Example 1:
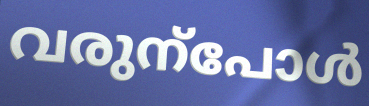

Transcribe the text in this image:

വരുന്പോൾ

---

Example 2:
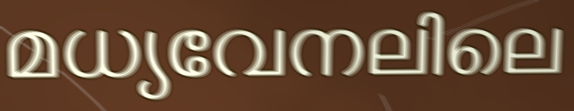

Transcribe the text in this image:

മധ്യവേനലിലെ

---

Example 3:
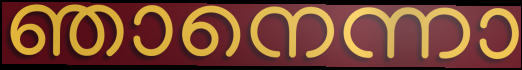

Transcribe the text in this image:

ഞാനെന്നാ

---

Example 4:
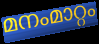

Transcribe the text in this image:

മനംമാറ്റം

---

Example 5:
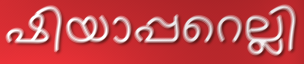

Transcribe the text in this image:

ഷിയാപ്പറെല്ലി